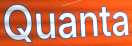
Quanta